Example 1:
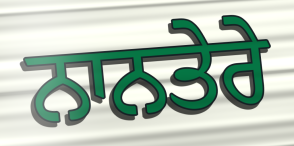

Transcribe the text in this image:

ਨਾਨਤੇਰੇ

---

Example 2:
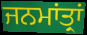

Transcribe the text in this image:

ਜਨਮਾਂਤ੍ਰਾਂ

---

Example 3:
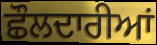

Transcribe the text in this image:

ਛੌਲਦਾਰੀਆਂ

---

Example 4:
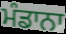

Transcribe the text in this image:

ਮੰਡਾਨਾ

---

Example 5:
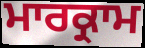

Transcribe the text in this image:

ਮਾਰਕ੍ਰਾਮ